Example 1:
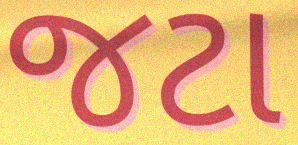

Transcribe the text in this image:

જટા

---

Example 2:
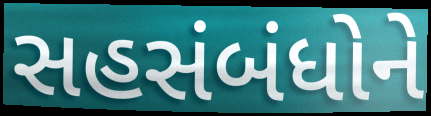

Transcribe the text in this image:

સહસંબંધોને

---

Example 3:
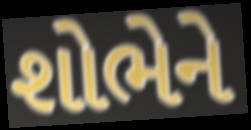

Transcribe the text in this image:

શોભેને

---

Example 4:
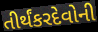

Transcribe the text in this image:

તીર્થંકરદેવોની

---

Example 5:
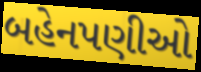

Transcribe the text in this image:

બહેનપણીઓ